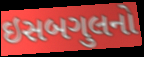
ઇસબગુલનો